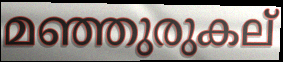
മഞ്ഞുരുകല്